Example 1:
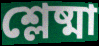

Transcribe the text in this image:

শ্লেষ্মা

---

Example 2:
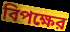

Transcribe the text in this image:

বিপক্ষের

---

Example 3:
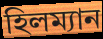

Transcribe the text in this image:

হিলম্যান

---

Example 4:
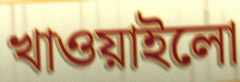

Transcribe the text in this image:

খাওয়াইলো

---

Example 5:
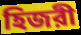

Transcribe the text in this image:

হিজরী